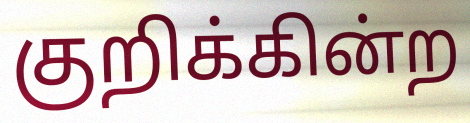
குறிக்கின்ற